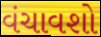
વંચાવશો